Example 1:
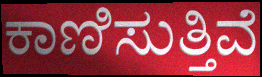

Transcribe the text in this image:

ಕಾಣಿಸುತ್ತಿವೆ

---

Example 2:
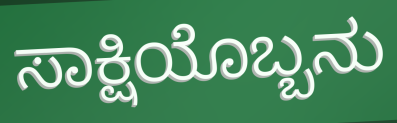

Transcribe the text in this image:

ಸಾಕ್ಷಿಯೊಬ್ಬನು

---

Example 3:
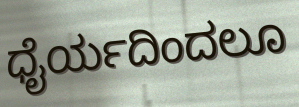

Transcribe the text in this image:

ಧೈರ್ಯದಿಂದಲೂ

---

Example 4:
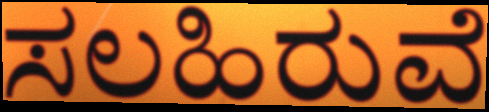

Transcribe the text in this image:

ಸಲಹಿರುವೆ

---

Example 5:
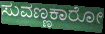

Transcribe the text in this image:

ಸುವಣ್ಣಕಾರೋ